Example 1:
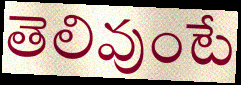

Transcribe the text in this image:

తెలివుంటే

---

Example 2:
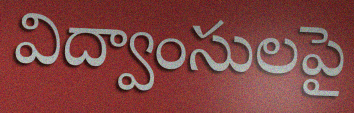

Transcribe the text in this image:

విద్వాంసులపై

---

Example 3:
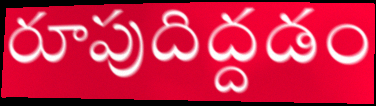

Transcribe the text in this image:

రూపుదిద్దడం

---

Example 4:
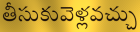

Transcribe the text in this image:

తీసుకువెళ్లవచ్చు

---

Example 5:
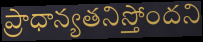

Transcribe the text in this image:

ప్రాధాన్యతనిస్తోందని